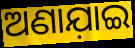
ଅଣାଯ଼ାଇ